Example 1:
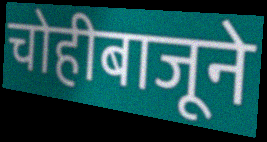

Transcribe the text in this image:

चोहीबाजूने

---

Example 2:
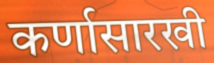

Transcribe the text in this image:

कर्णासारखी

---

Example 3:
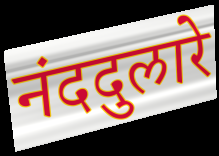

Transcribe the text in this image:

नंददुलारे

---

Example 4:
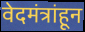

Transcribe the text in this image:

वेदमंत्रांहून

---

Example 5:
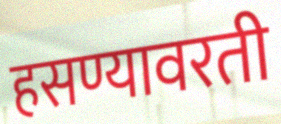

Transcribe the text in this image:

हसण्यावरती